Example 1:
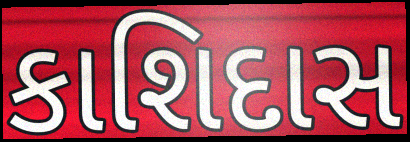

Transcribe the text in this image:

કાશિદાસ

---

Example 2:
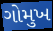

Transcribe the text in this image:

ગોમુખ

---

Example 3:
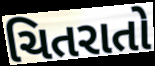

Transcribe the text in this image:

ચિતરાતો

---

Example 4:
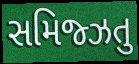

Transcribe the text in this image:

સમિજ્ઝતુ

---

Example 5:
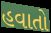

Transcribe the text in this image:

હવાતો